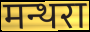
मन्थरा